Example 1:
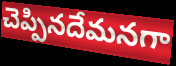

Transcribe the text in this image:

చెప్పినదేమనగా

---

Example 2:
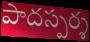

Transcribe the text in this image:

పాదస్పర్శ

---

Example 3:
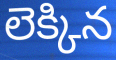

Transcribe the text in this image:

లెక్కిన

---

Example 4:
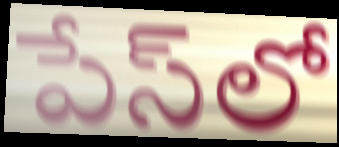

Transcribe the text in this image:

పేస్‌లో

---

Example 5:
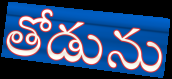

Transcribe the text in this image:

తోడును